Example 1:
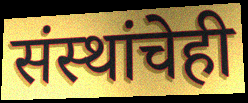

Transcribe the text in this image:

संस्थांचेही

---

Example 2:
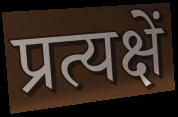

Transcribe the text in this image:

प्रत्यक्षें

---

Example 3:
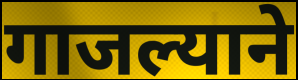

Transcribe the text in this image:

गाजल्याने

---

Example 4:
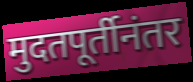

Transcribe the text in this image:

मुदतपूर्तीनंतर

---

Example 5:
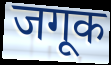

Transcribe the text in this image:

जगूक